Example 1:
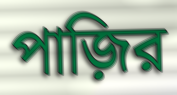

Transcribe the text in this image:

পাজ়ির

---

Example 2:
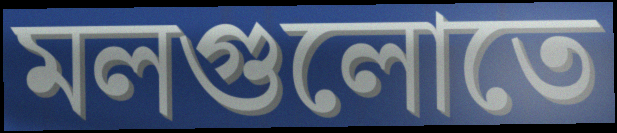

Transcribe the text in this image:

মলগুলোতে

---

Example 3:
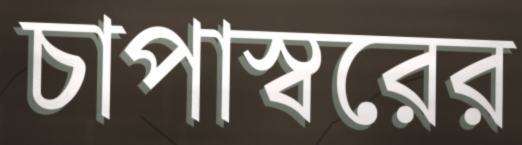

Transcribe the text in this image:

চাপাস্বরের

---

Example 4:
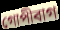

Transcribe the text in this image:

গোপীবাগ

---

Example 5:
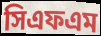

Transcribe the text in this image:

সিএফএম